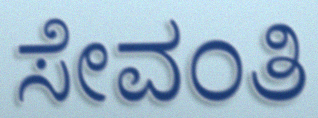
ಸೇವಂತಿ